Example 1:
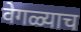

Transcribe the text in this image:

वेगळ्याच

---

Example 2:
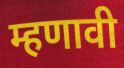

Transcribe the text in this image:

म्हणावी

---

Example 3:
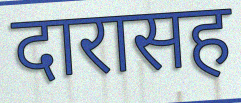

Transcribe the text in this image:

दारासह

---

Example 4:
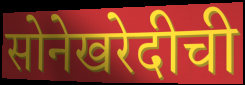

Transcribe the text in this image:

सोनेखरेदीची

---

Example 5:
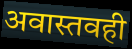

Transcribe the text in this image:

अवास्तवही